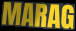
MARAG